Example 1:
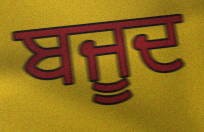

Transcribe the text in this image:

ਬਜੂਦ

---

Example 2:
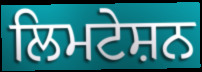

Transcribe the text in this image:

ਲਿਮਟੇਸ਼ਨ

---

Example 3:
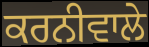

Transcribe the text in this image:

ਕਰਨੀਵਾਲੇ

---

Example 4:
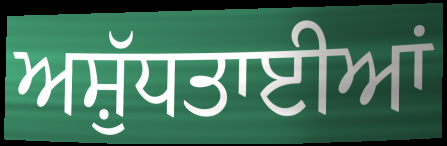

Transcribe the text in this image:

ਅਸ਼ੁੱਧਤਾਈਆਂ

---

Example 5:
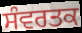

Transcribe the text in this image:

ਸੰਵਰਤਕ